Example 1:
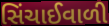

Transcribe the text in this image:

સિંચાઈવાળી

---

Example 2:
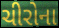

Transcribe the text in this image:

ચીરોના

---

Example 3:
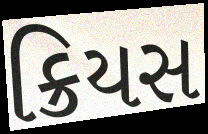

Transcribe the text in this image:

ક્રિયસ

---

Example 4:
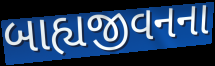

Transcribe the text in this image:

બાહ્યજીવનના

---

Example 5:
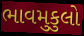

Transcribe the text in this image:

ભાવમુકુલો